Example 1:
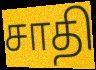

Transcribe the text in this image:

சாதி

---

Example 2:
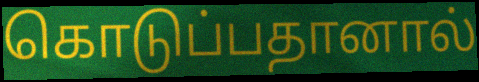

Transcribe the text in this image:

கொடுப்பதானால்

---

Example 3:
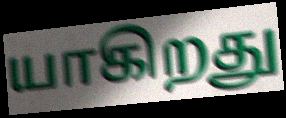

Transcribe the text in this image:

யாகிறது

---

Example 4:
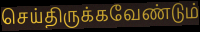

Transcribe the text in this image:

செய்திருக்கவேண்டும்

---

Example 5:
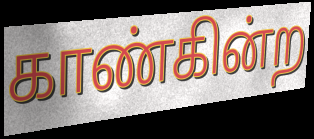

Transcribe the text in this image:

காண்கின்ற